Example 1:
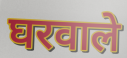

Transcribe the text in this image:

घरवाले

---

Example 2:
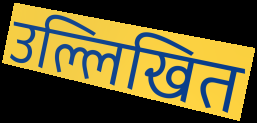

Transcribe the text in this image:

उल्लिखित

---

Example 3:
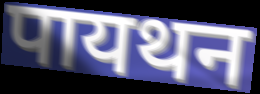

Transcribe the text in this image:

पायथन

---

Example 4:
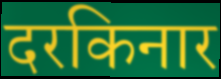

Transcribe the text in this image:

दरकिनार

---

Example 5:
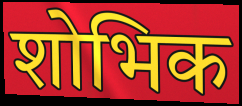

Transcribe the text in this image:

शोभिक